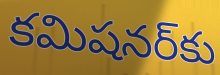
కమిషనర్‌కు